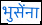
भुसेंना